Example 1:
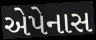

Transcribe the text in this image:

એપેનાસ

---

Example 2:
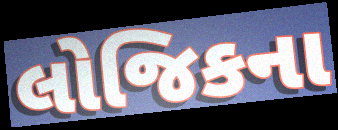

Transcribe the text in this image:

લોજિકના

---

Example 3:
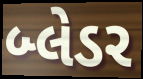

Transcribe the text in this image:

બ્લેડર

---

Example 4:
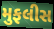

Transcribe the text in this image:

મુફલીસ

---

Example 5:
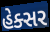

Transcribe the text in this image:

હેક્સર